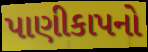
પાણીકાપનો